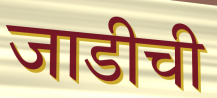
जाडीची